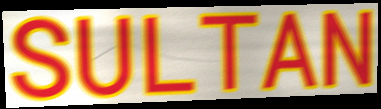
SULTAN